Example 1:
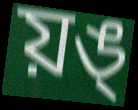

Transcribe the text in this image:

য়ঙ্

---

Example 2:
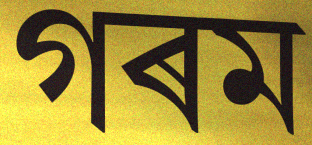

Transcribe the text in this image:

গৰম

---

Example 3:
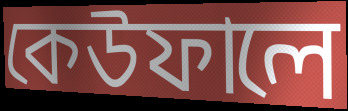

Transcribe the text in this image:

কেউফালে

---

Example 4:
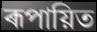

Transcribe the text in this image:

ৰূপায়িত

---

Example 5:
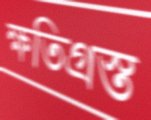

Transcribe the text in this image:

ক্ষতিগ্ৰস্ত